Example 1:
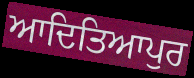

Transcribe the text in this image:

ਆਦਿਤਿਆਪੁਰ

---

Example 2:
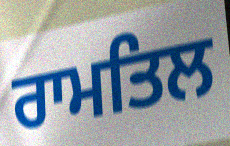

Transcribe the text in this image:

ਰਾਮਤਿਲ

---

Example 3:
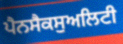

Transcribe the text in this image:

ਪੈਨਸੈਕਸੁਅਲਿਟੀ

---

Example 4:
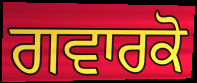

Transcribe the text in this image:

ਗਵਾਰਕੋ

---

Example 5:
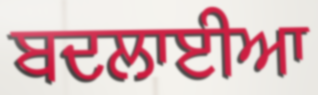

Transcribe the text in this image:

ਬਦਲਾਈਆ